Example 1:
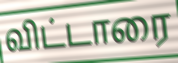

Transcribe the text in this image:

விட்டாரை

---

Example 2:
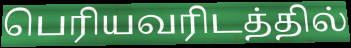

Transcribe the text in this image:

பெரியவரிடத்தில்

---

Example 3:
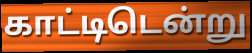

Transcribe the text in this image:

காட்டிடென்று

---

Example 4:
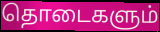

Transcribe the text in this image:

தொடைகளும்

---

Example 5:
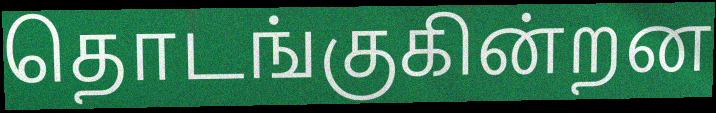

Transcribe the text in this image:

தொடங்குகின்றன